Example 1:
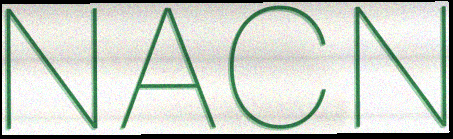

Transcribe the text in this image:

NACN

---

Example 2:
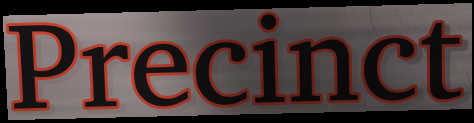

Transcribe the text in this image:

Precinct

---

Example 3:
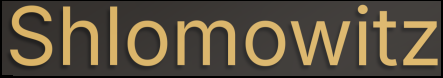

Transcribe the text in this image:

Shlomowitz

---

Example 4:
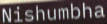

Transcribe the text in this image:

Nishumbha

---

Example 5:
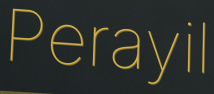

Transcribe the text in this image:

Perayil